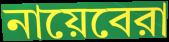
নায়েবেরা